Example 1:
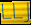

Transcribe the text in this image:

LLJ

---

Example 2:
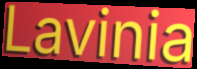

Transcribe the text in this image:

Lavinia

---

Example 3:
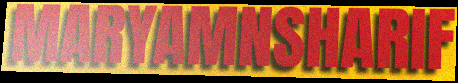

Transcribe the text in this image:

MARYAMNSHARIF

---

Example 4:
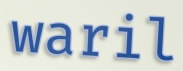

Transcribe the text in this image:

waril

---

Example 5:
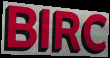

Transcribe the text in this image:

BIRC